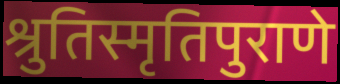
श्रुतिस्मृतिपुराणे